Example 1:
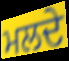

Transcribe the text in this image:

ਮਲਦੇ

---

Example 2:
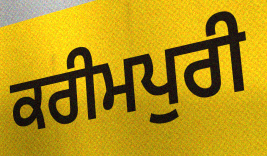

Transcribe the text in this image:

ਕਰੀਮਪੁਰੀ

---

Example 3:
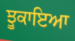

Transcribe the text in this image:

ਝੂਕਾਇਆ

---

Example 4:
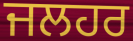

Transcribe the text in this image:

ਜਲਹਰ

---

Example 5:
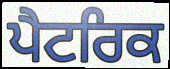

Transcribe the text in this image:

ਪੈਟਰਿਕ